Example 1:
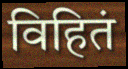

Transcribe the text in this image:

विहितं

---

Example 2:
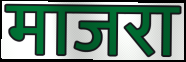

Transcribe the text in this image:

माजरा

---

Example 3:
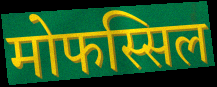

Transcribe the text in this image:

मोफस्सिल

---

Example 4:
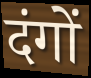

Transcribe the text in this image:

दंगों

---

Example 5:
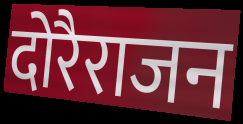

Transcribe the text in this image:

दोरैराजन